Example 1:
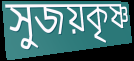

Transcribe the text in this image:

সুজয়কৃষ্ণ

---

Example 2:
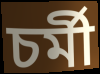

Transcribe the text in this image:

চর্মী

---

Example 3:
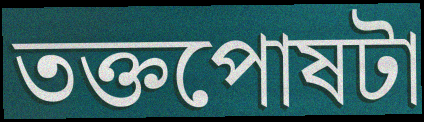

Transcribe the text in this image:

তক্তপোষটা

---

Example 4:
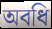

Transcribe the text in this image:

অবধি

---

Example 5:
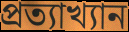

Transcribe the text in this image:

প্রত্যাখ্যান